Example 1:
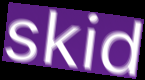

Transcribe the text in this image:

skid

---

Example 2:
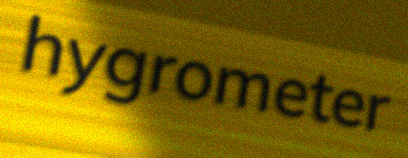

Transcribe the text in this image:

hygrometer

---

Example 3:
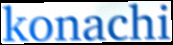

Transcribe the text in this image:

konachi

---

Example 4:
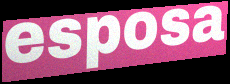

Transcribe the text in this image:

esposa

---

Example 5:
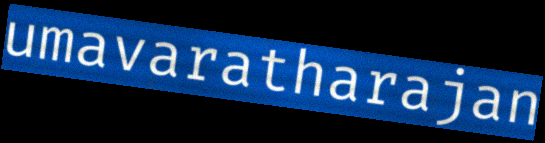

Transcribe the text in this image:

umavaratharajan